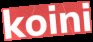
koini